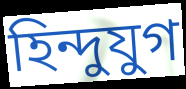
হিন্দুযুগ